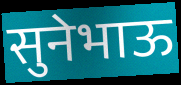
सुनेभाऊ